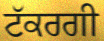
ਟੱਕਰਗੀ